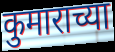
कुमाराच्या